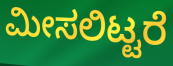
ಮೀಸಲಿಟ್ಟರೆ